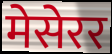
मेसेरर